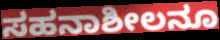
ಸಹನಾಶೀಲನೂ